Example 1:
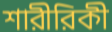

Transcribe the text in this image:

শারীরিকী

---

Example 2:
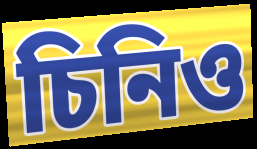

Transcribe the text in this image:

চিনিও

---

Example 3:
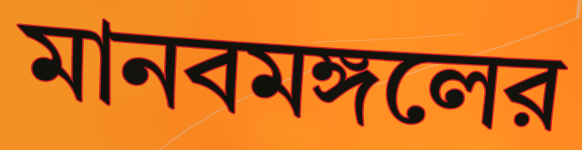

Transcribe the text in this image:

মানবমঙ্গলের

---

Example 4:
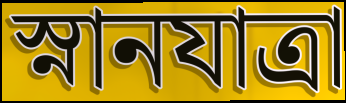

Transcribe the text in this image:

স্নানযাত্রা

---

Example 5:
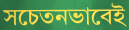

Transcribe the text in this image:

সচেতনভাবেই